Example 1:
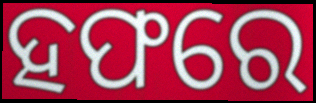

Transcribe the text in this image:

ହଫରେ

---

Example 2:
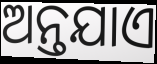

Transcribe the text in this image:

ଅନ୍ତଯାଏ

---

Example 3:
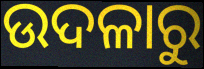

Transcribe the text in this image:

ଉଦଳାରୁ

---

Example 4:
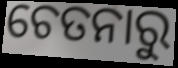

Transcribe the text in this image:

ଚେତନାରୁ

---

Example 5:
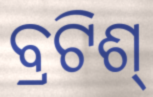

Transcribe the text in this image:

ବ୍ରଟିଶ୍